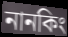
নানকিং